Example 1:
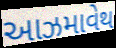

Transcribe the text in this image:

આઝમાવેથ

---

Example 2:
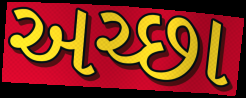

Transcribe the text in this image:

અચ્છા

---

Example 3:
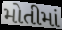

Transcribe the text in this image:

મોતીમાં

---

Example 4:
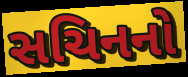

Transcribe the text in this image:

સચિનનો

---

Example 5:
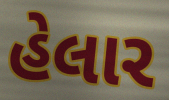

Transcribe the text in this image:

હેલાર